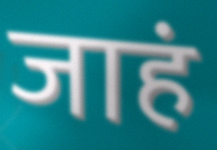
जाहं